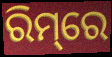
ରିମ୍‌ରେ